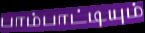
பாம்பாட்டியும்